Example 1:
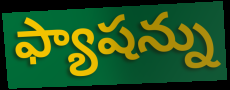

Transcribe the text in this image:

ఫ్యాషన్ను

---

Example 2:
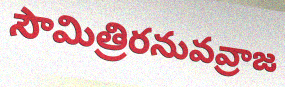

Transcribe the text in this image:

సౌమిత్రిరనువవ్రాజ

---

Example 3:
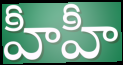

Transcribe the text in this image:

హీహీ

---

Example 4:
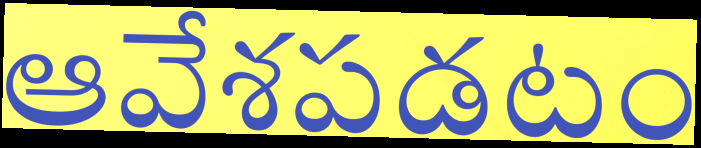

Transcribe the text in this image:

ఆవేశపడటం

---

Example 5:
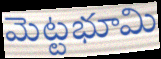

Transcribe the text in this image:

మెట్టభూమి